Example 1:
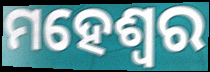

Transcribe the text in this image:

ମହେଶ୍ଵର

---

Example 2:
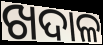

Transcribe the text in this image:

ଖଦାଳ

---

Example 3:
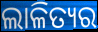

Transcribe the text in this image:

ଲାଳିତ୍ୟର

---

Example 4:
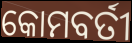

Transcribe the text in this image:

କୋମବର୍ତୀ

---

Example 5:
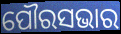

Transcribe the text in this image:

ପୌରସଭାର